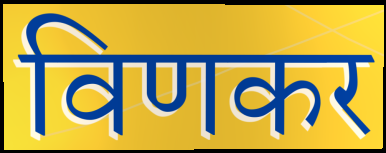
विणकर